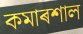
কমাৰশাল